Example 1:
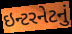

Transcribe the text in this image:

ઇન્ટરનેટનું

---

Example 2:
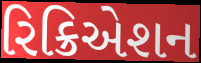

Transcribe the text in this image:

રિક્રિએશન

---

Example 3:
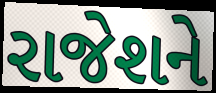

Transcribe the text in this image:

રાજેશને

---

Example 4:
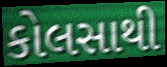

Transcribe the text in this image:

કોલસાથી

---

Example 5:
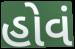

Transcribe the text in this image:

હોવં